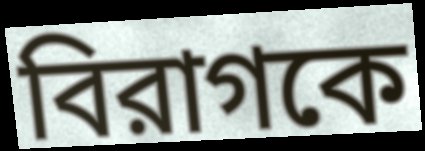
বিরাগকে